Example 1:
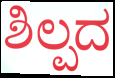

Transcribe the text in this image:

ಶಿಲ್ಪದ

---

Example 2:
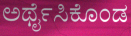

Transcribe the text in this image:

ಅರ್ಥೈಸಿಕೊಂಡ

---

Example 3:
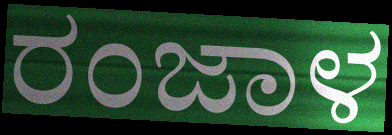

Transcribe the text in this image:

ರಂಜಾಳ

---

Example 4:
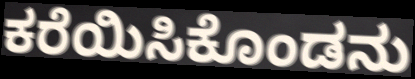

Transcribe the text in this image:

ಕರೆಯಿಸಿಕೊಂಡನು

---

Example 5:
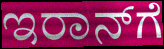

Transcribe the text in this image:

ಇರಾನ್‌ಗೆ